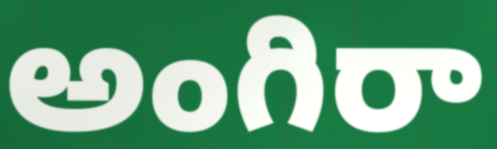
అంగిరా